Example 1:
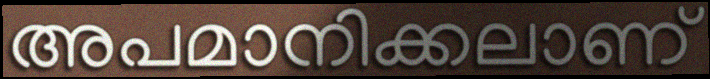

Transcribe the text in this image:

അപമാനിക്കലാണ്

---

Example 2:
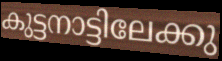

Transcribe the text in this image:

കുട്ടനാട്ടിലേക്കു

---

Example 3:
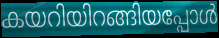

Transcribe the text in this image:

കയറിയിറങ്ങിയപ്പോൾ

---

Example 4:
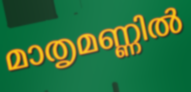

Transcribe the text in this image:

മാതൃമണ്ണിൽ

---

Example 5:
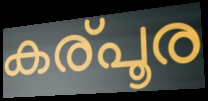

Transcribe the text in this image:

കര്പൂര